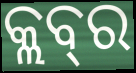
କ୍ଲବ୍‌ର